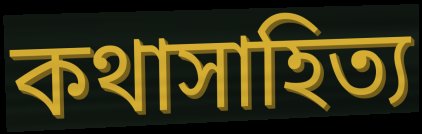
কথাসাহিত্য